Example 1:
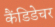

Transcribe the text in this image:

कैंडिडेचर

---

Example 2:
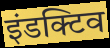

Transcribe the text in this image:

इंडक्टिव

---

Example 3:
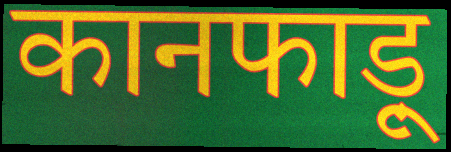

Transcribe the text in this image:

कानफाड़ू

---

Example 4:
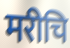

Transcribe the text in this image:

मरीचि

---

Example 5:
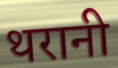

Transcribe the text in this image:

थरानी